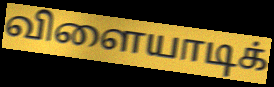
விளையாடிக்